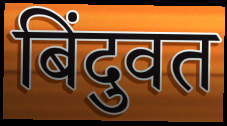
बिंदुवत